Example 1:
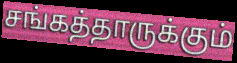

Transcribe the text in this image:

சங்கத்தாருக்கும்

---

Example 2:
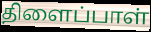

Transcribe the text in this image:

திளைப்பாள்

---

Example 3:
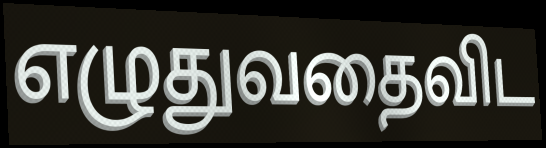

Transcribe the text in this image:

எழுதுவதைவிட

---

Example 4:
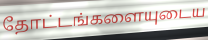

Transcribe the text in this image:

தோட்டங்களையுடைய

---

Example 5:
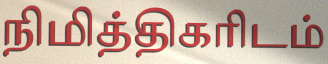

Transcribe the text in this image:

நிமித்திகரிடம்